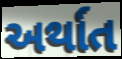
અર્થાત